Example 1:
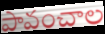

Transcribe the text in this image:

పావంచాల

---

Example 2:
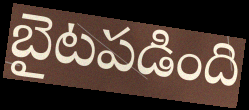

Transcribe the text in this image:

బైటపడింది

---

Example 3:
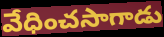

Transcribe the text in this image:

వేధించసాగాడు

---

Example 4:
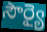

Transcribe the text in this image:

సౌర్యై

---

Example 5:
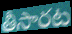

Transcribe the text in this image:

తీసారట